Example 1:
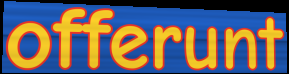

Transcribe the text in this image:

offerunt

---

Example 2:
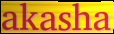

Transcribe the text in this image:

akasha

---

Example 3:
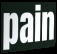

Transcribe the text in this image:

pain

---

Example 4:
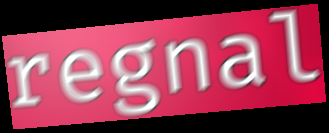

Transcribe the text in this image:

regnal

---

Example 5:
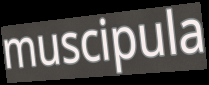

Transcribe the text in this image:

muscipula